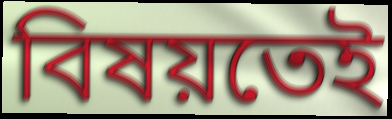
বিষয়তেই